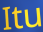
Itu